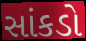
સાંકડો